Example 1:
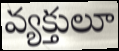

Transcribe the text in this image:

వ్యక్తులూ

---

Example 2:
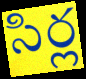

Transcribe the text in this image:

సిర్ల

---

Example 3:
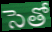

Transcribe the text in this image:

సెతో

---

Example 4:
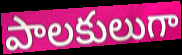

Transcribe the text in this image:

పాలకులుగా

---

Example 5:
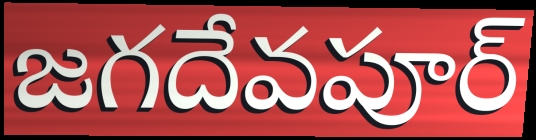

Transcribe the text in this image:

జగదేవపూర్